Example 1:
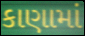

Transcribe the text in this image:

કાણામાં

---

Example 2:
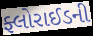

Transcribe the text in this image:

ફ્લોરાઈડની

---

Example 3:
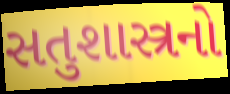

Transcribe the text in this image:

સતુશાસ્ત્રનો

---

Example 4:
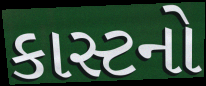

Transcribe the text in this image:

કાસ્ટનો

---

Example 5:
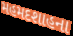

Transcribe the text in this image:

મહમદશાહના